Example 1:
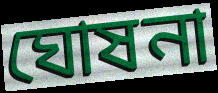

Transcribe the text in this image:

ঘোষনা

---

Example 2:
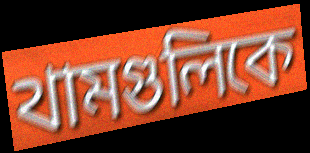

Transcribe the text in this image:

থামগুলিকে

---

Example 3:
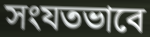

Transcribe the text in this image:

সংযতভাবে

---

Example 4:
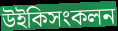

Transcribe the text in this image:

উইকিসংকলন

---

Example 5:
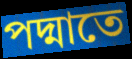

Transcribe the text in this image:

পদ্মাতে